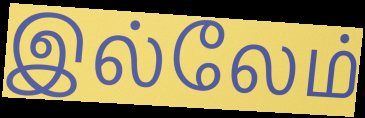
இல்லேம்